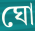
ঘো